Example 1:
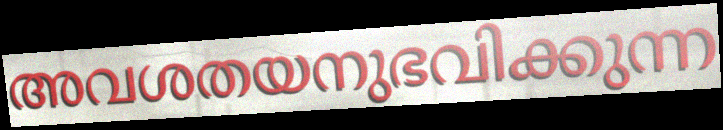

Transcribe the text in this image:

അവശതയനുഭവിക്കുന്ന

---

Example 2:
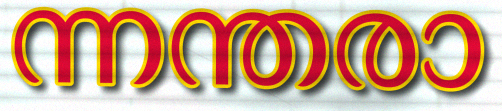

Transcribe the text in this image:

ന്നന്തരാ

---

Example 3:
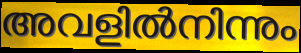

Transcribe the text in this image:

അവളിൽനിന്നും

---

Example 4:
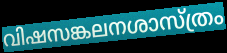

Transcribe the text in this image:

വിഷസങ്കലനശാസ്ത്രം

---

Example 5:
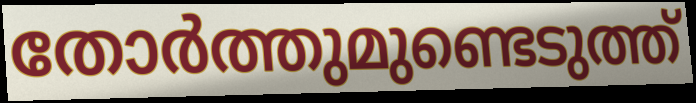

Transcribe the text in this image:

തോർത്തുമുണ്ടെടുത്ത്